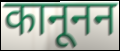
कानूनन